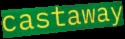
castaway